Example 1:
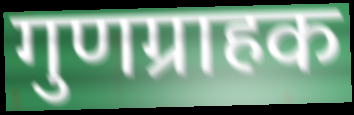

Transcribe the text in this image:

गुणग्राहक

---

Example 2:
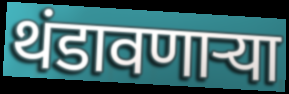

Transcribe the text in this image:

थंडावणाऱ्या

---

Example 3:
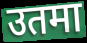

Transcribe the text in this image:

उतमा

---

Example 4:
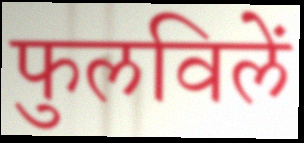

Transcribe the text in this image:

फुलविलें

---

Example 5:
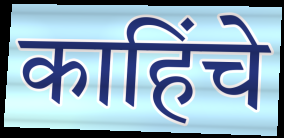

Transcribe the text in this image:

काहिंचे